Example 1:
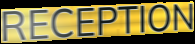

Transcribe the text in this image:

RECEPTION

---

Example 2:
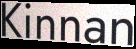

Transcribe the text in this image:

Kinnan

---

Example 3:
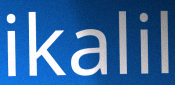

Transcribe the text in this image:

ikalil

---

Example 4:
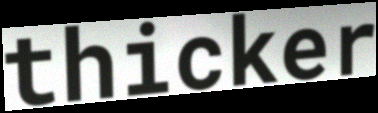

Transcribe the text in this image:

thicker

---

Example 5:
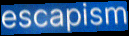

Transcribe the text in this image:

escapism